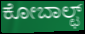
ಕೋಬಾಲ್ಟ್